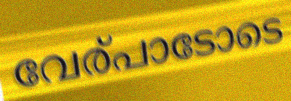
വേര്പാടോടെ